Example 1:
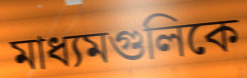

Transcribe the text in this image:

মাধ্যমগুলিকে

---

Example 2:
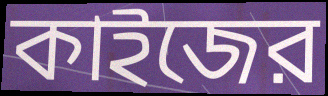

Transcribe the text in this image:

কাইজের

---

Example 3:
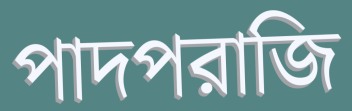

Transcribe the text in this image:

পাদপরাজি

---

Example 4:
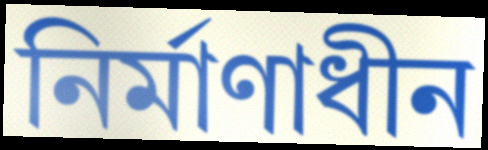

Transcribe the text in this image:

নির্মাণাধীন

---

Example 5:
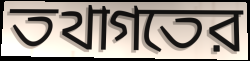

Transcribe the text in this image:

তথাগতের